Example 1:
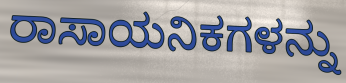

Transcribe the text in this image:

ರಾಸಾಯನಿಕಗಳನ್ನು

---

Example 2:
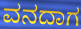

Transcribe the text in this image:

ವನದಾಗ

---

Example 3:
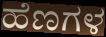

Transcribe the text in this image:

ಹೆಣಗಳ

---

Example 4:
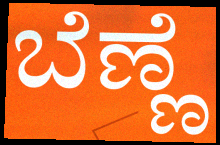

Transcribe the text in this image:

ಬೆಣ್ಣೆ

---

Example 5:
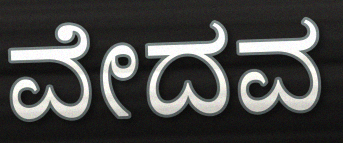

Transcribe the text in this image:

ವೇದವ